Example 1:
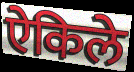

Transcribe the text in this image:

ऐकिले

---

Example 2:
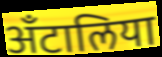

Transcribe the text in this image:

अँटालिया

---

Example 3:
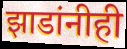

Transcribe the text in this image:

झाडांनीही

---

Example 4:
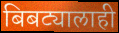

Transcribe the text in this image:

बिबट्यालाही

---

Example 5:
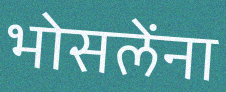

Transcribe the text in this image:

भोसलेंना